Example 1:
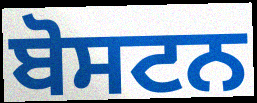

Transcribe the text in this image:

ਬੋਸਟਨ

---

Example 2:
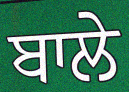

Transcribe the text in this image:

ਬਾਲੇ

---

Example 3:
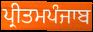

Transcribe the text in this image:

ਪ੍ਰੀਤਮਪੰਜਾਬ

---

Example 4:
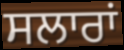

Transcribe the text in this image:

ਸਲਾਰਾਂ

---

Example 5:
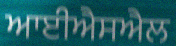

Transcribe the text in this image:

ਆਈਐਸਐਲ